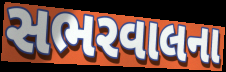
સભરવાલના